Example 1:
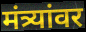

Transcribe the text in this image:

मंत्र्यांवर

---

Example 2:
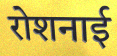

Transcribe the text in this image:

रोशनाई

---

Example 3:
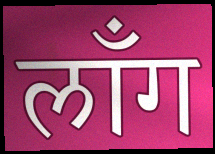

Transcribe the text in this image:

लाँग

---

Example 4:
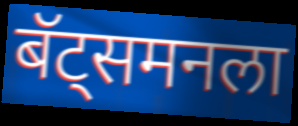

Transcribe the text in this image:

बॅट्समनला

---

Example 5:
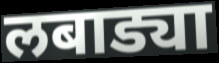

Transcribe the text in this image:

लबाड्या